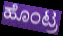
ಹೊಂಟ್ರ